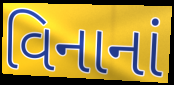
વિનાનાં